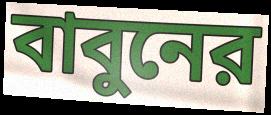
বাবুনের